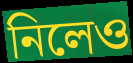
নিলেও